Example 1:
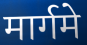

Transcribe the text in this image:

मार्गमे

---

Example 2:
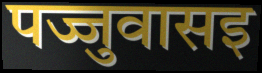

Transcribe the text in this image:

पज्जुवासइ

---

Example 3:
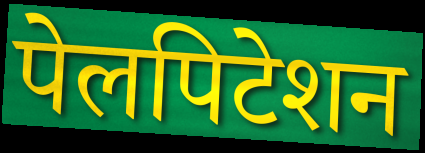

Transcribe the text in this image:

पेलपिटेशन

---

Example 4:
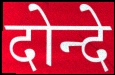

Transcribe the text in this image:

दोन्दे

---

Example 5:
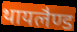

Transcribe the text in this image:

थायलैण्ड